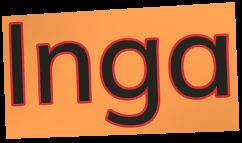
Inga